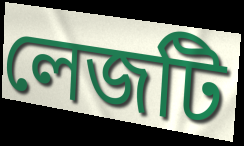
লেজটি